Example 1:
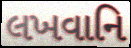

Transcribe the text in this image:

લખવાનિ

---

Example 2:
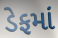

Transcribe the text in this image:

ડેફમાં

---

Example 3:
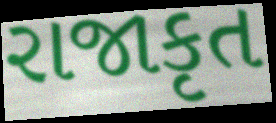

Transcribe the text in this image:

રાજાકૃત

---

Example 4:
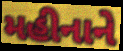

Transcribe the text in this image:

મહીનાને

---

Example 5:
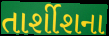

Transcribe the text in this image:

તાર્શીશના